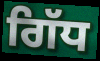
ਗਿੱਧ